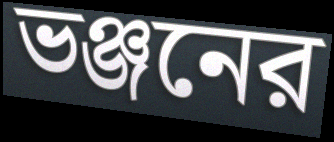
ভঞ্জনের